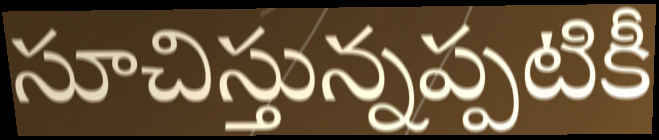
సూచిస్తున్నప్పటికీ